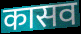
कासव